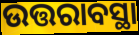
ଉତ୍ତରାବସ୍ଥା